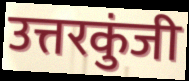
उत्तरकुंजी